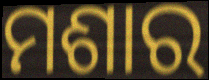
ମଶାର